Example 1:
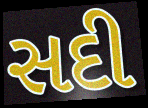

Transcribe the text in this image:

સદી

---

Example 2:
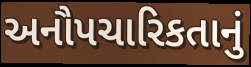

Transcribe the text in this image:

અનૌપચારિકતાનું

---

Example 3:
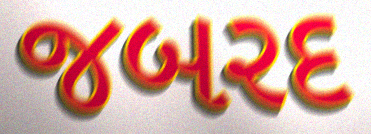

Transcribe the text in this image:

જબરદ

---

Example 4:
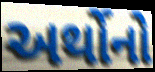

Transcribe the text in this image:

અર્થોનો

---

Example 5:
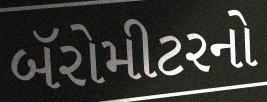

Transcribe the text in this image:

બૅરોમીટરનો